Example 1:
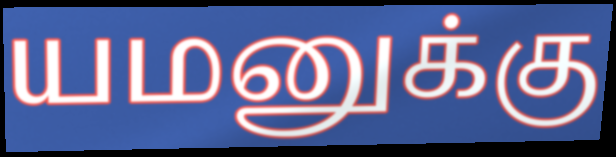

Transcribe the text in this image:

யமனுக்கு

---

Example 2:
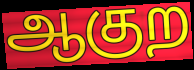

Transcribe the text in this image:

ஆகுற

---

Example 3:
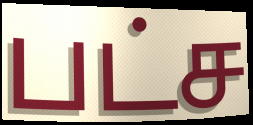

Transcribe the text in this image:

பட்ச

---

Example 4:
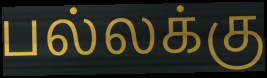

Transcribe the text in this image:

பல்லக்கு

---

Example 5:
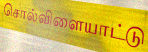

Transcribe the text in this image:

சொல்விளையாட்டு